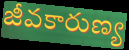
జీవకారుణ్య